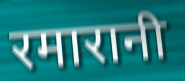
रमारानी